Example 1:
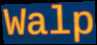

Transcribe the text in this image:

Walp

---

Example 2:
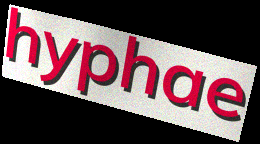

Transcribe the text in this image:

hyphae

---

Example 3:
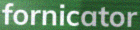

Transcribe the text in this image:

fornicator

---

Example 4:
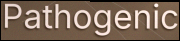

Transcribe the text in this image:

Pathogenic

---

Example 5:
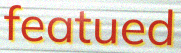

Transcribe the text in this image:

featued